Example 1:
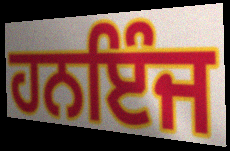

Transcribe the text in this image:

ਹਨਇੰਜ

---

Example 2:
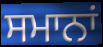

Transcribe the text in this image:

ਸਮਾਨਾਂ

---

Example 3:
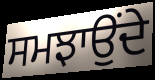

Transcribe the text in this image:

ਸਮਝਾਉਂਦੇ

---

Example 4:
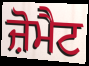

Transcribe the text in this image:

ਜ਼ੋਮੈਟ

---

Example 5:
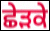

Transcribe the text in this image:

ਛੇੜਕੇ